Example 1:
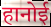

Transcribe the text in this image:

हानोई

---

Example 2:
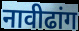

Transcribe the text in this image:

नावीढांग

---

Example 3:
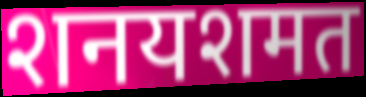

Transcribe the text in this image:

शनयशमत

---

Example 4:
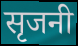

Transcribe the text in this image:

सृजनी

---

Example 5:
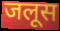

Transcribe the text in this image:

जलूस